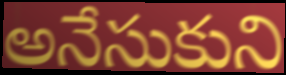
అనేసుకుని